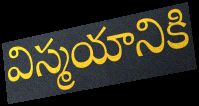
విస్మయానికి